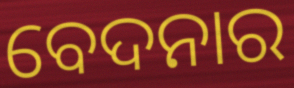
ବେଦନାର